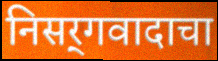
निसर्गवादाचा